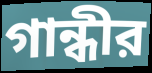
গান্ধীর